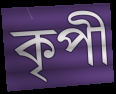
কৃপী